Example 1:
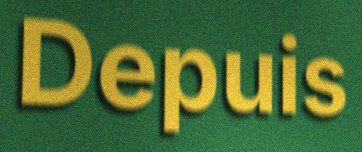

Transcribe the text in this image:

Depuis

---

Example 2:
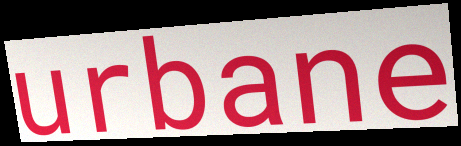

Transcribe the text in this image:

urbane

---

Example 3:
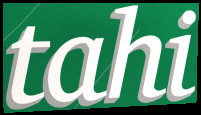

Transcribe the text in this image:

tahi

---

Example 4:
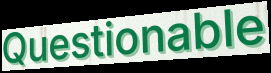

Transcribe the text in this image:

Questionable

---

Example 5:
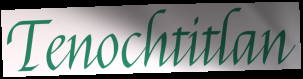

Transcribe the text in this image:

Tenochtitlan